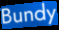
Bundy